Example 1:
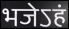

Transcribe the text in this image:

भजेऽहं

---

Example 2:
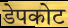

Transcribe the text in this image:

डेपकोट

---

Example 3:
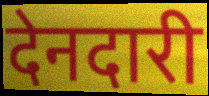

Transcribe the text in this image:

देनदारी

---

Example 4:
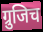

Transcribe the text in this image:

ग्रुजिच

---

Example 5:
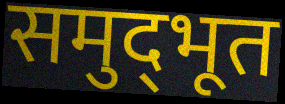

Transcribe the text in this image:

समुद्भूत